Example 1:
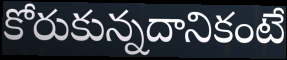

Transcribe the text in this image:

కోరుకున్నదానికంటే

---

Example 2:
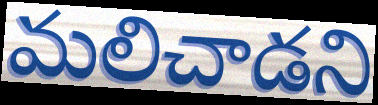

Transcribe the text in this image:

మలిచాడని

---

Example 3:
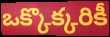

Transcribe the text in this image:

ఒక్కొక్కరికీ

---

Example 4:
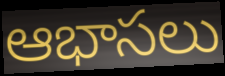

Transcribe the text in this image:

ఆభాసలు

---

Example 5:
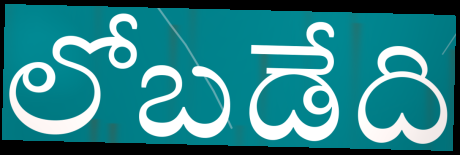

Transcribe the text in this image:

లోబడేది